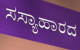
ಸಸ್ಯಾಹಾರದ